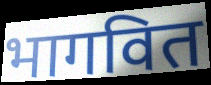
भागवित